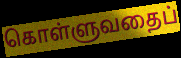
கொள்ளுவதைப்